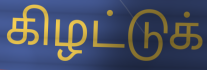
கிழட்டுக்